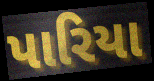
પારિયા